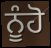
ਨੂੰਹੋ